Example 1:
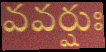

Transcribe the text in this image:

వవర్షుః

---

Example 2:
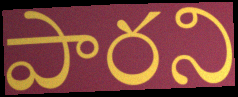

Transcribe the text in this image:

పారని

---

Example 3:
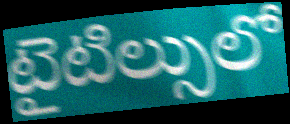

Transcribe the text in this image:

టైటిల్సులో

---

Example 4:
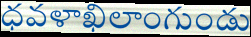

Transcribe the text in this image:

ధవళాఖిలాంగుండు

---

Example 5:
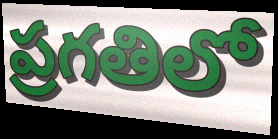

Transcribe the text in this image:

ప్రగతిలో